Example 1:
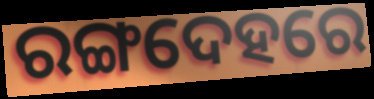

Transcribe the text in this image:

ରଙ୍ଗଦେହରେ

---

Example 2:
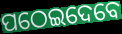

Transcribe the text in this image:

ପଠେଇଦେବେ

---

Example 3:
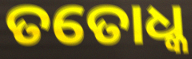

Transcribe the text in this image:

ତତୋଧ୍କ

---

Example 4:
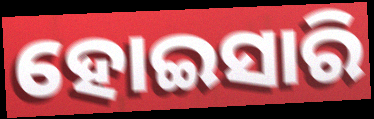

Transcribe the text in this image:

ହୋଇସାରି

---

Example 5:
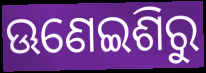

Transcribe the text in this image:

ଊଣେଇଶିରୁ